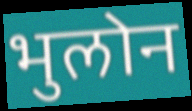
भुलोन